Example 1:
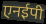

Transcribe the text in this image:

एनईपी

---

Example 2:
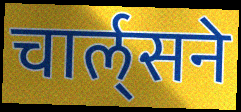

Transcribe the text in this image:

चार्ल्सने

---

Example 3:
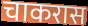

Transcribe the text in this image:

चाकरास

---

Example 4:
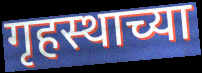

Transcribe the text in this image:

गृहस्थाच्या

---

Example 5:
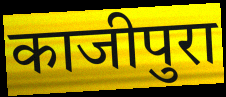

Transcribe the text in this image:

काजीपुरा